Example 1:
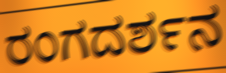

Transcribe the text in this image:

ರಂಗದರ್ಶನ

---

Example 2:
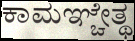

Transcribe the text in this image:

ಕಾಮಞ್ಚೇತ್ಥ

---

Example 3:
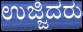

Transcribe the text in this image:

ಉಜ್ಜಿದರು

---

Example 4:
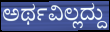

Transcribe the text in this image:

ಅರ್ಥವಿಲ್ಲದ್ದು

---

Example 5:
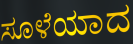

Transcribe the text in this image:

ಸೂಳೆಯಾದ